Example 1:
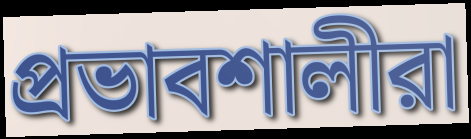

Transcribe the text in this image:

প্রভাবশালীরা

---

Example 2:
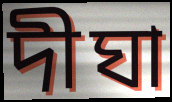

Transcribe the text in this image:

দীঘা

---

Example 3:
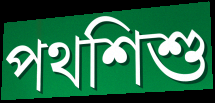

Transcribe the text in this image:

পথশিশু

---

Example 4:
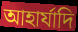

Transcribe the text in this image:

আহার্যাদি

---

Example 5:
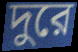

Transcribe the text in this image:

দুরে